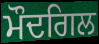
ਮੌਦਗਿਲ